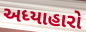
અધ્યાહારો